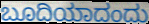
ಬೂದಿಯಾದಂದು